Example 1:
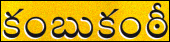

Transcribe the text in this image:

కంబుకంఠీ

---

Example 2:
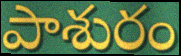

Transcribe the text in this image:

పాశురం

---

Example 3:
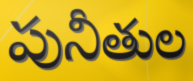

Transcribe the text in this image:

పునీతుల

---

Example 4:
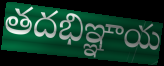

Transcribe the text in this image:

తదభిఞ్ఞాయ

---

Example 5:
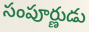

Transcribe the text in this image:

సంపూర్ణుడు